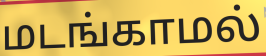
மடங்காமல்